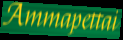
Ammapettai